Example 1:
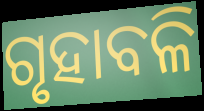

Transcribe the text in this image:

ଗୃହାବଳି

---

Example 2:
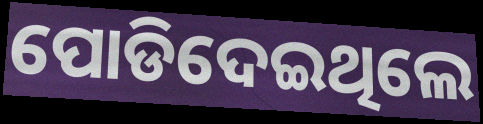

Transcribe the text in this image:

ପୋଡିଦେଇଥିଲେ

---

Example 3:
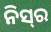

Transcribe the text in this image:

ନିସ୍‌ର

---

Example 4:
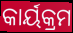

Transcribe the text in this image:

କାର୍ୟକ୍ରମ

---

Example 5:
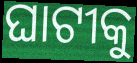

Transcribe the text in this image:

ଘାଟୀକୁ